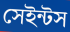
সেইন্টস